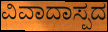
ವಿವಾದಾಸ್ಪದ